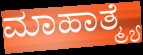
ಮಾಹಾತ್ಮ್ಯೆ